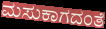
ಮಸುಕಾಗದಂತೆ